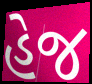
હેજ